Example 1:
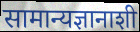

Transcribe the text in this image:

सामान्यज्ञानाशी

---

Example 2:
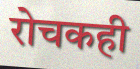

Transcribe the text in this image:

रोचकही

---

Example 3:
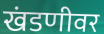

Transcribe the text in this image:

खंडणीवर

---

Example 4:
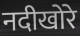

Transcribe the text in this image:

नदीखोरे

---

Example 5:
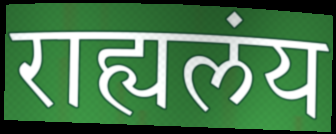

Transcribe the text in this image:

राह्यलंय